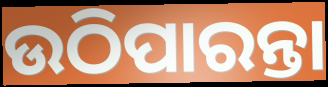
ଉଠିପାରନ୍ତା